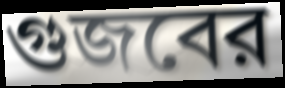
গুজবের